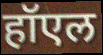
हॉएल